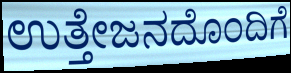
ಉತ್ತೇಜನದೊಂದಿಗೆ